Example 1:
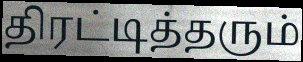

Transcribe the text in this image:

திரட்டித்தரும்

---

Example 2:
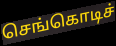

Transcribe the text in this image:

செங்கொடிச்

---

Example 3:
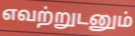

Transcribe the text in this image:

எவற்றுடனும்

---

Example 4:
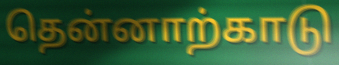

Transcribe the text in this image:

தென்னாற்காடு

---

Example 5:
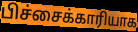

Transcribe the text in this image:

பிச்சைக்காரியாக